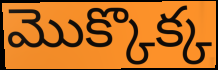
మొక్కొక్క